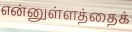
என்னுள்ளத்தைக்